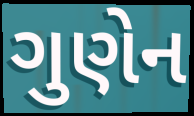
ગુણેન